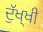
ਦੁੱਖ੍ਖੀ